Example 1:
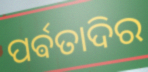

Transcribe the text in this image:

ପର୍ଵତାଦିର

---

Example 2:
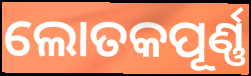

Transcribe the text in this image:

ଲୋତକପୂର୍ଣ୍ଣ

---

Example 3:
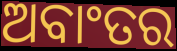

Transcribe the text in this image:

ଅବାଂତର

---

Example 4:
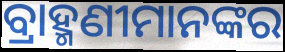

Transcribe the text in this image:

ବ୍ରାହ୍ମଣୀମାନଙ୍କର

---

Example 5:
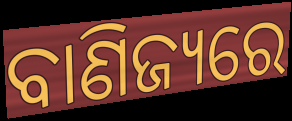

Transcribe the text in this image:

ବାଣିଜ୍ୟରେ